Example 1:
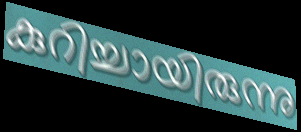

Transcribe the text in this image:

കുറിച്ചായിരുന്നു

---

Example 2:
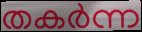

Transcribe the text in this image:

തകർന്ന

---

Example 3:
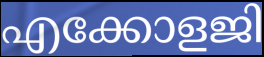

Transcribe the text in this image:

എക്കോളജി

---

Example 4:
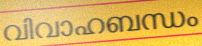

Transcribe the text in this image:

വിവാഹബന്ധം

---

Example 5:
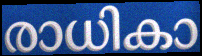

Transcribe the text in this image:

രാധികാ